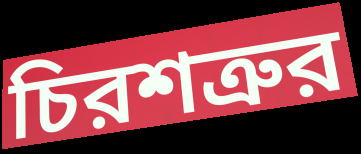
চিরশত্রুর